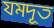
যমদূত